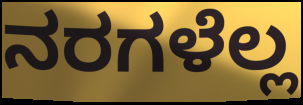
ನರಗಳೆಲ್ಲ